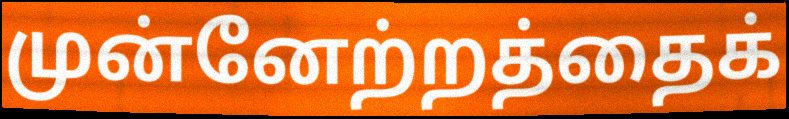
முன்னேற்றத்தைக்